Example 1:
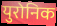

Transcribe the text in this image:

युरोनिक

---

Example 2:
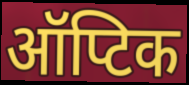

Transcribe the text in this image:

ऑप्टिक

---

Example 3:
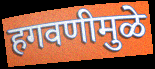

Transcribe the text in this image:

हगवणीमुळे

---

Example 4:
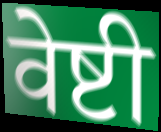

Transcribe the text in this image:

वेष्टी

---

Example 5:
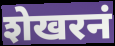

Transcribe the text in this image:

शेखरनं